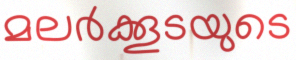
മലർക്കൂടയുടെ